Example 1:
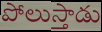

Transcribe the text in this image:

పోలుస్తాడు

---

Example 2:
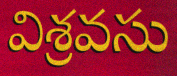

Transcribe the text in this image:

విశ్రవసు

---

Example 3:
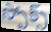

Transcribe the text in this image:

స్పోక్స్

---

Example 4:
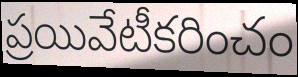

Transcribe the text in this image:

ప్రయివేటీకరించం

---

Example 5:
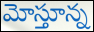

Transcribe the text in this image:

మోస్తూన్న